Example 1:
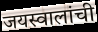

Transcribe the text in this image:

जयस्वालांची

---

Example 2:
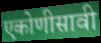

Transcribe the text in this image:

एकोणीसावी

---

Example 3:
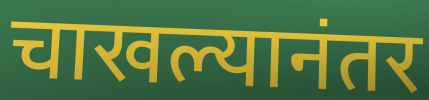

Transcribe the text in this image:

चाखल्यानंतर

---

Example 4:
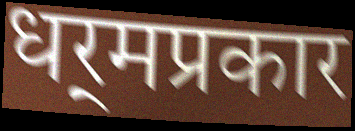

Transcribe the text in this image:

धर्मप्रकार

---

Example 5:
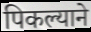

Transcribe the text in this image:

पिकल्याने